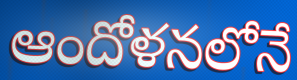
ఆందోళనలోనే